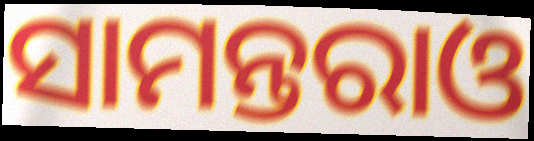
ସାମନ୍ତରାଓ